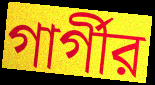
গার্গীর